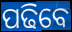
ପଢିବେ